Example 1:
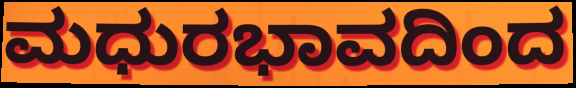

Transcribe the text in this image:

ಮಧುರಭಾವದಿಂದ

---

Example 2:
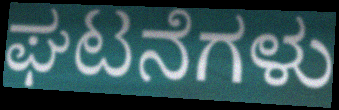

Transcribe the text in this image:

ಘಟನೆಗಳು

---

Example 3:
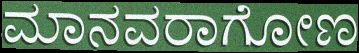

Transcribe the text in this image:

ಮಾನವರಾಗೋಣ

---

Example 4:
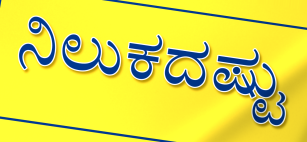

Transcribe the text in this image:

ನಿಲುಕದಷ್ಟು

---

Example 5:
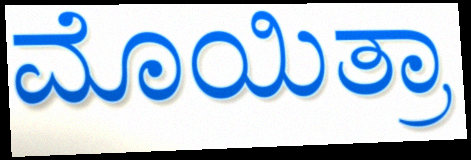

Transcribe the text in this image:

ಮೊಯಿತ್ರಾ